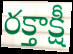
రక్తాక్షీ